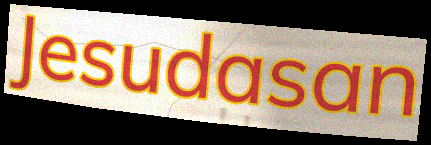
Jesudasan